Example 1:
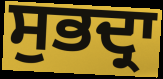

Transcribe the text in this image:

ਸੁਭਦ੍ਰਾ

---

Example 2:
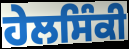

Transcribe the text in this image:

ਹੇਲਸਿੰਕੀ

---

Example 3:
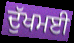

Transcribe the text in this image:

ਦੁੱਖਮਈ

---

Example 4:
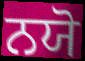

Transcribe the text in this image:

ਨਯੋ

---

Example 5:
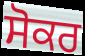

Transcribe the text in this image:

ਸੋਕਰ